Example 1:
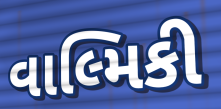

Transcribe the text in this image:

વાલ્મિકી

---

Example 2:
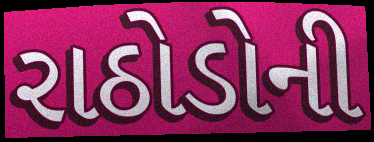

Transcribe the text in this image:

રાઠોડોની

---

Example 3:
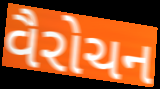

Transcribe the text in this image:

વૈરોચન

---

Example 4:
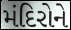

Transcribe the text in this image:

મંદિરોને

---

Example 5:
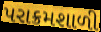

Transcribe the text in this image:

પરાક્રમશાળી